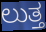
ಲುತ್ತ